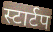
स्टार्टप